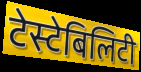
टेस्टेबिलिटी